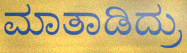
ಮಾತಾಡಿದ್ರು